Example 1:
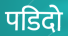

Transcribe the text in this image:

पडिदो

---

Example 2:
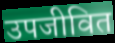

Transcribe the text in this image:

उपजीवित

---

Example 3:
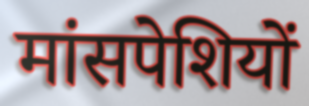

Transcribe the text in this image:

मांसपेशियों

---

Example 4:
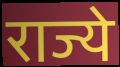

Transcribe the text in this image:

राज्ये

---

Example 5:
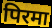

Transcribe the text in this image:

पिरमा